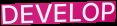
DEVELOP